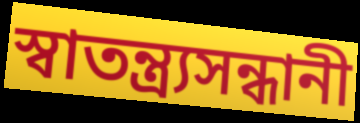
স্বাতন্ত্র্যসন্ধানী